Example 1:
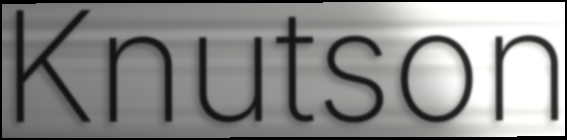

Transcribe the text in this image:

Knutson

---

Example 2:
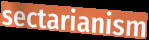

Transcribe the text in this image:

sectarianism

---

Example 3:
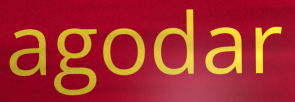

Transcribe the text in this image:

agodar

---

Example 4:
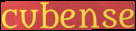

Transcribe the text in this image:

cubense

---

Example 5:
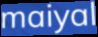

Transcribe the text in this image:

maiyal